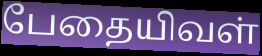
பேதையிவள்